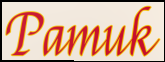
Pamuk